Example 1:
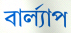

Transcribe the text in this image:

বার্ল্যাপ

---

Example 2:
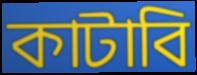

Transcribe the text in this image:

কাটাবি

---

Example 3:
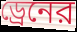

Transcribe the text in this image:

ড্রেনের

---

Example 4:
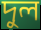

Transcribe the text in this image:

দুল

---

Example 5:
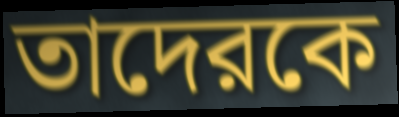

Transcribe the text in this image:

তাদেরকে